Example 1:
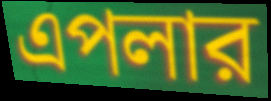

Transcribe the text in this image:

এপলার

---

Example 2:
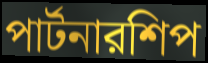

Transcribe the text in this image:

পার্টনারশিপ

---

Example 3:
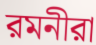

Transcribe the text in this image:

রমনীরা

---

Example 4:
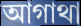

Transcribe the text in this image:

আগাথা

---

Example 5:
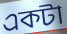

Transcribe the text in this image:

একটা